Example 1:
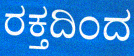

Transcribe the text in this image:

ರಕ್ತದಿಂದ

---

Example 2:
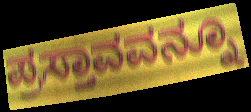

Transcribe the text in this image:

ಪ್ರಸ್ತಾವವನ್ನೂ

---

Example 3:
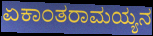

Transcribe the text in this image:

ಏಕಾಂತರಾಮಯ್ಯನ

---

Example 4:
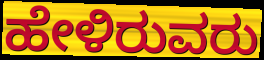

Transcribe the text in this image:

ಹೇಳಿರುವರು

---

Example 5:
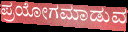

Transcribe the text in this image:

ಪ್ರಯೋಗಮಾಡುವ